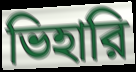
ভিহারি